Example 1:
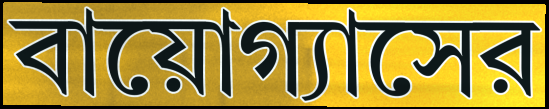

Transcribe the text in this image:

বায়োগ্যাসের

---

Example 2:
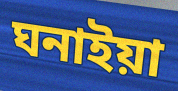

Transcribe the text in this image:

ঘনাইয়া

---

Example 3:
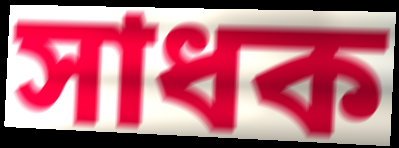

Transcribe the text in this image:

সাধক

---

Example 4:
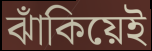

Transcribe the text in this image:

ঝাঁকিয়েই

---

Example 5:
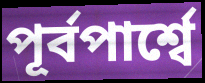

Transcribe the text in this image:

পূর্বপার্শ্বে